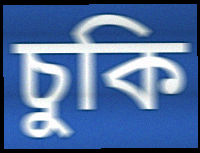
চুকি